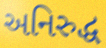
અનિરુદ્ધ